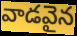
వాడవైన